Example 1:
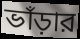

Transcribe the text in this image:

ভাঁড়ার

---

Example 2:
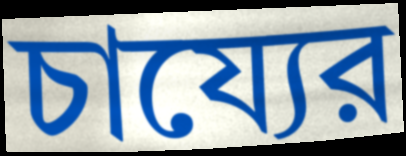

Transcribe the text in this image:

চায্যের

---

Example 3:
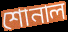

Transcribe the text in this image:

শোনাল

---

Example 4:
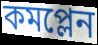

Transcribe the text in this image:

কমপ্লেন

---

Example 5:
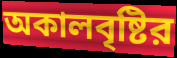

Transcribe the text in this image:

অকালবৃষ্টির